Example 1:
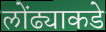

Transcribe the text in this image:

लोंढ्याकडे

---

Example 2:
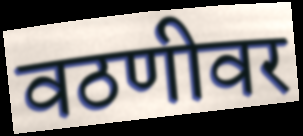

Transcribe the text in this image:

वठणीवर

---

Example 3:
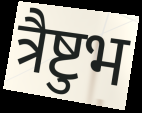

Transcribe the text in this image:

त्रैष्टुभ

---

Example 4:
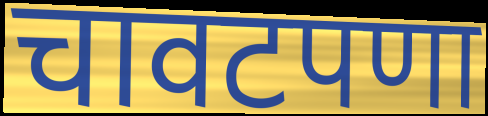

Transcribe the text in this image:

चावटपणा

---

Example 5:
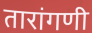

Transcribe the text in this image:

तारांगणी